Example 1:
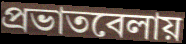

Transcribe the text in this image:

প্রভাতবেলায়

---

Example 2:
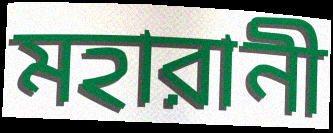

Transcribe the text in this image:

মহারানী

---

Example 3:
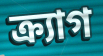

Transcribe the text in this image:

ক্র্যাগ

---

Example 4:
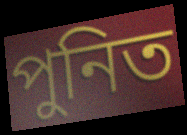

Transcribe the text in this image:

পুনিত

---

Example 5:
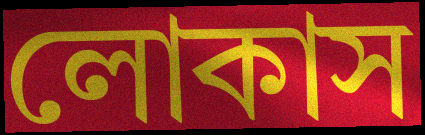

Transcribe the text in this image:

লোকাস